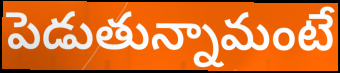
పెడుతున్నామంటే